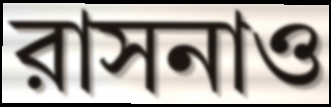
রাসনাও